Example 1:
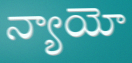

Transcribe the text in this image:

న్యాయో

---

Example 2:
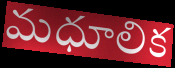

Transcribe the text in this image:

మధూలిక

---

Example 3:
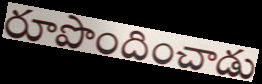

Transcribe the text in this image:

రూపొందించాడు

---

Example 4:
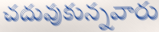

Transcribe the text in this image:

చదువుకున్నవారు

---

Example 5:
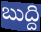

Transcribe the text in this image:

బుద్ది